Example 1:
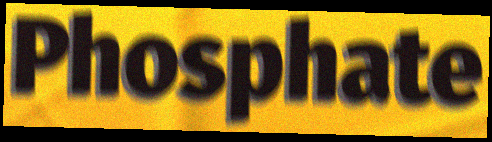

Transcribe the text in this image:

Phosphate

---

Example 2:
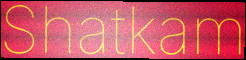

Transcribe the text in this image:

Shatkam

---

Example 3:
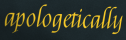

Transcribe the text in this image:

apologetically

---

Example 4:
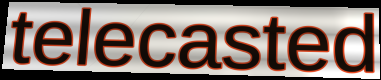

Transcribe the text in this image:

telecasted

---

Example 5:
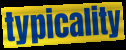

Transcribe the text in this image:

typicality